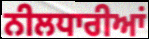
ਨੀਲਧਾਰੀਆਂ